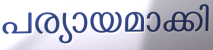
പര്യായമാക്കി